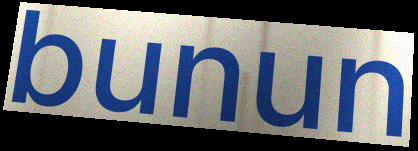
bunun